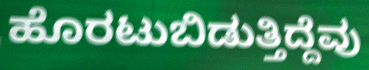
ಹೊರಟುಬಿಡುತ್ತಿದ್ದೆವು